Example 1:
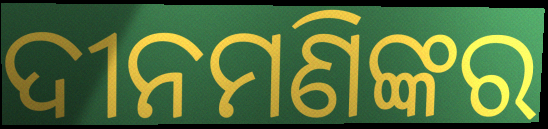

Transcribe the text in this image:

ଦୀନମଣିଙ୍କର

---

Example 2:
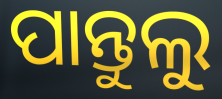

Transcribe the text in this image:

ପାନ୍ତୁଲୁ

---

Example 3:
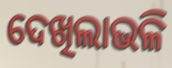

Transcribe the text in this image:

ଦେଖିଲାଭଳି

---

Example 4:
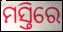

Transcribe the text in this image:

ମସ୍ତିରେ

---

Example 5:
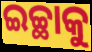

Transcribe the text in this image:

ଇଚ୍ଛାକୁ